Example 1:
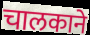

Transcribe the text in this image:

चालकाने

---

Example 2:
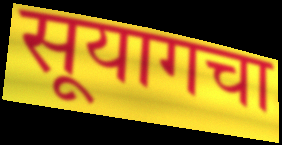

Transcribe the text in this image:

सूयागचा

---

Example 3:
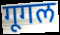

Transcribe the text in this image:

गूगल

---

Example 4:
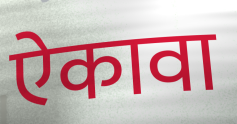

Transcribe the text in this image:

ऐकावा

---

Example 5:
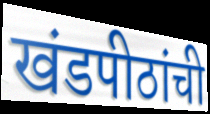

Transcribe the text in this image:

खंडपीठांची